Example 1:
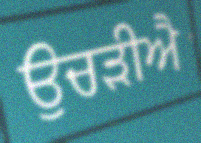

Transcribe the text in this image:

ਉਚੜੀਐ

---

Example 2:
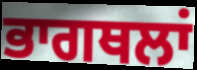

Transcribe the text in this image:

ਭਾਗਥਲਾਂ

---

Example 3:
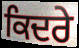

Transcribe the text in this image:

ਕਿਦਰੇ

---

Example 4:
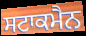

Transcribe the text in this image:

ਸਟਾਕਮੈਨ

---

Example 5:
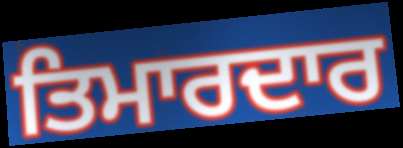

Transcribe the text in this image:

ਤਿਮਾਰਦਾਰ